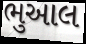
ભુઆલ